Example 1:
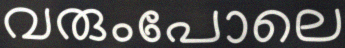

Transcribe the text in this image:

വരുംപോലെ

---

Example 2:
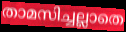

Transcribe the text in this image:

താമസിച്ചല്ലാതെ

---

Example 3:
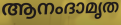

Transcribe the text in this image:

ആനംദാമൃത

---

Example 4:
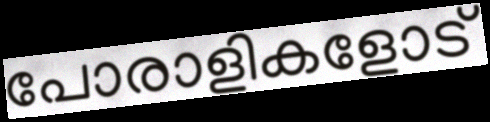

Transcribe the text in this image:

പോരാളികളോട്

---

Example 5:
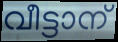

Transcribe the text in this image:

വീട്ടാന്